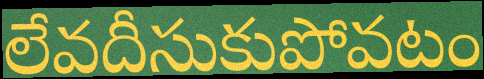
లేవదీసుకుపోవటం